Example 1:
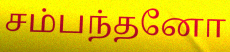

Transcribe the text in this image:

சம்பந்தனோ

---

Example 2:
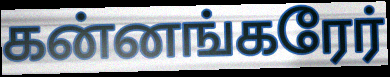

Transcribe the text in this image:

கன்னங்கரேர்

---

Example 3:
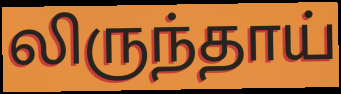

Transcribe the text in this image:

லிருந்தாய்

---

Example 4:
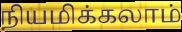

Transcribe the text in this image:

நியமிக்கலாம்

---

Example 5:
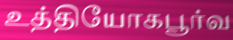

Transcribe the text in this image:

உத்தியோகபூர்வ